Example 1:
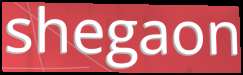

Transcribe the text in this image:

shegaon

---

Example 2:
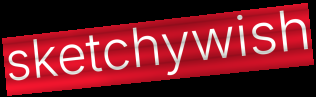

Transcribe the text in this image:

sketchywish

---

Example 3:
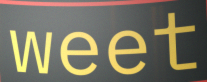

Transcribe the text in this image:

weet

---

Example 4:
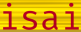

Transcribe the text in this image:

isai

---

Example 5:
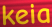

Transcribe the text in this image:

keia